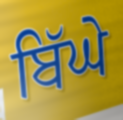
ਬਿੱਘੇ